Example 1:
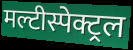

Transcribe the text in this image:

मल्टीस्पेक्ट्रल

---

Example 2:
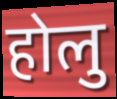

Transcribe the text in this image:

होलु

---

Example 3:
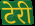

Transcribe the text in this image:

टेरी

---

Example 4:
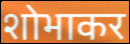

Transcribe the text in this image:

शोभाकर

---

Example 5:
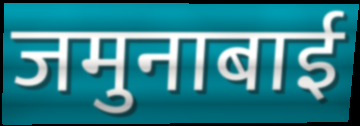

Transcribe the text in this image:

जमुनाबाई